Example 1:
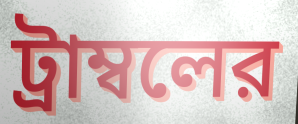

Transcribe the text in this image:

ট্রাম্বলের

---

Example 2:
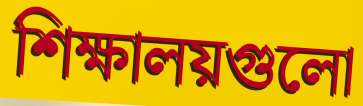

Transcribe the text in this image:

শিক্ষালয়গুলো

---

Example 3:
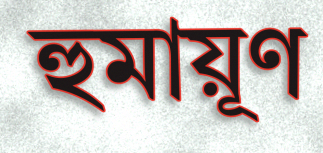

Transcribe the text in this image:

হুমায়ূণ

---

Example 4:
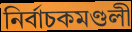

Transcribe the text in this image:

নির্বাচকমণ্ডলী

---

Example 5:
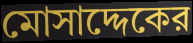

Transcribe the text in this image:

মোসাদ্দেকের